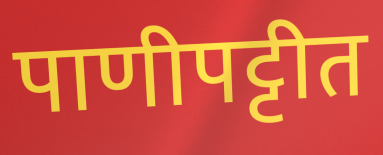
पाणीपट्टीत